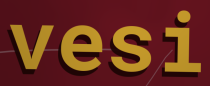
vesi